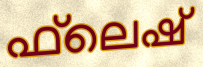
ഫ്‌ലെഷ്